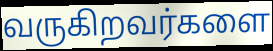
வருகிறவர்களை